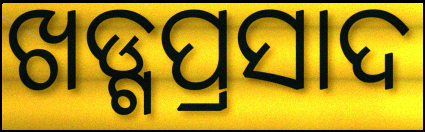
ଖଡ୍ଗପ୍ରସାଦ